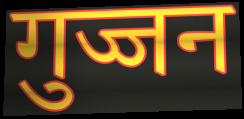
गुज्जन